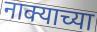
नाक्याच्या